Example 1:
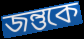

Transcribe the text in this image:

জন্তুকে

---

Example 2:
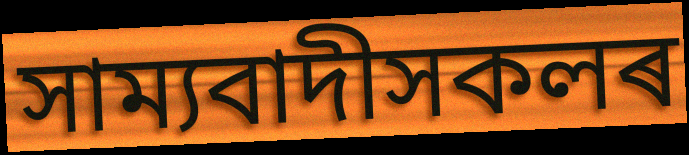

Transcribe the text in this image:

সাম্যবাদীসকলৰ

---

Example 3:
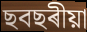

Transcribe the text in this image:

ছবছৰীয়া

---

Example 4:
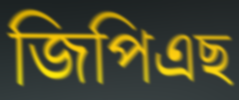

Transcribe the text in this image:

জিপিএছ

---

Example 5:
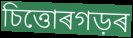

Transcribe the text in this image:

চিত্তোৰগড়ৰ